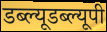
डब्ल्यूडब्ल्यूपी